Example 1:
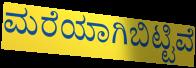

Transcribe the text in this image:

ಮರೆಯಾಗಿಬಿಟ್ಟಿವೆ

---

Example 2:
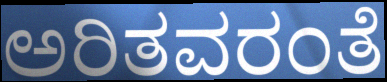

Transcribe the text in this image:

ಅರಿತವರಂತೆ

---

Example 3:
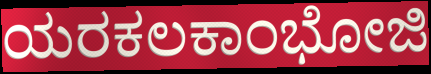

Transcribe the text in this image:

ಯರಕಲಕಾಂಭೋಜಿ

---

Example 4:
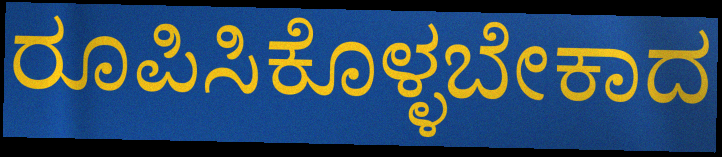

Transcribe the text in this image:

ರೂಪಿಸಿಕೊಳ್ಳಬೇಕಾದ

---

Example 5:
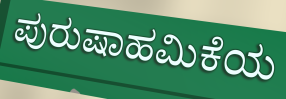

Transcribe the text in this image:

ಪುರುಷಾಹಮಿಕೆಯ